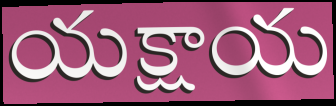
యక్షాయ